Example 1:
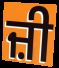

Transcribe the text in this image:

ਜ਼ੀ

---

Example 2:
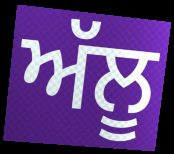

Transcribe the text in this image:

ਅੱਲੂ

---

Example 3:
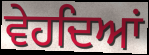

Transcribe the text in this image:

ਵੇਹਦਿਆਂ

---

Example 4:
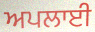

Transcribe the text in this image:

ਅਪਲਾਈ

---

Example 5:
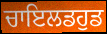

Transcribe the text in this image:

ਚਾਇਲਡਹੁਡ